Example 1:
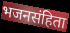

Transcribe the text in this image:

भजनसंहिता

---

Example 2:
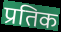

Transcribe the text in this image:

प्रतिक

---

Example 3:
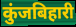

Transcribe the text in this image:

कुंजबिहारी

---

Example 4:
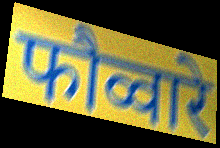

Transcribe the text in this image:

फौव्वारे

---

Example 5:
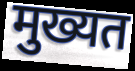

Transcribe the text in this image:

मुख्‍यत